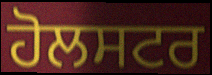
ਹੋਲਸਟਰ